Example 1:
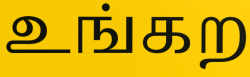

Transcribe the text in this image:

உங்கற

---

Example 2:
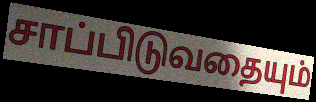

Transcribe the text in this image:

சாப்பிடுவதையும்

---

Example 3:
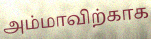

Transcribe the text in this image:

அம்மாவிற்காக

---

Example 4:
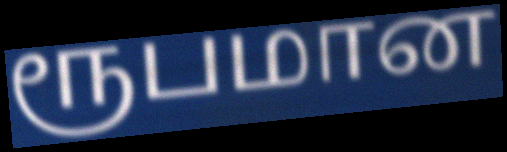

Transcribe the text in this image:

ரூபமான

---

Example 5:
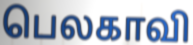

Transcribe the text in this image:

பெலகாவி